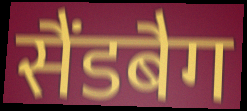
सैंडबैग